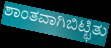
ಶಾಂತವಾಗಿಬಿಟ್ಟಿತು